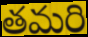
తమరి